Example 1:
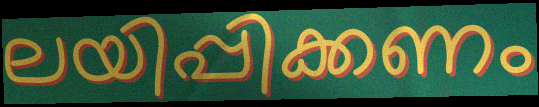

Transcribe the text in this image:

ലയിപ്പിക്കണം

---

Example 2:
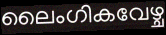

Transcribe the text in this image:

ലൈംഗികവേഴ്ച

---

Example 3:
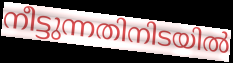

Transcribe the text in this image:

നീട്ടുന്നതിനിടയിൽ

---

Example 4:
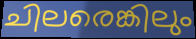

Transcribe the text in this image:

ചിലരെങ്കിലും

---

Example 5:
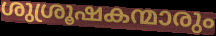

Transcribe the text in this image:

ശുശ്രൂഷകന്മാരും